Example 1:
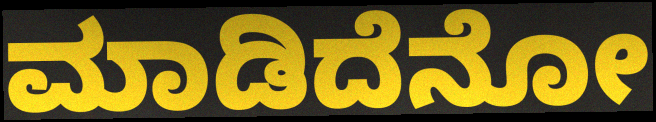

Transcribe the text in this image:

ಮಾಡಿದೆನೋ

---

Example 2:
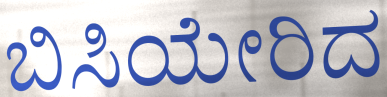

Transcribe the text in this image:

ಬಿಸಿಯೇರಿದ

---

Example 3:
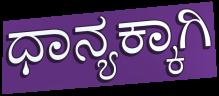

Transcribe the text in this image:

ಧಾನ್ಯಕ್ಕಾಗಿ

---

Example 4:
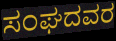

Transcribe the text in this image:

ಸಂಘದವರ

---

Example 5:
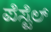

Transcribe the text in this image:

ಪೆಸ್ಟೆಲ್